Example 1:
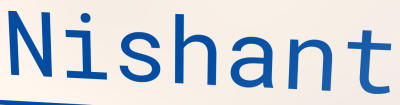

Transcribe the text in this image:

Nishant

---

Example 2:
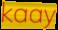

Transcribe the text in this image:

kaay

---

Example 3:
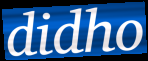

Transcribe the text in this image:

didho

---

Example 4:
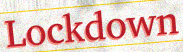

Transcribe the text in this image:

Lockdown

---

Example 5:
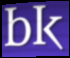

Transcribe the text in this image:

bk